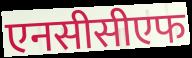
एनसीसीएफ